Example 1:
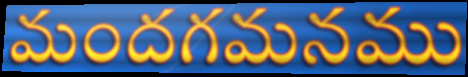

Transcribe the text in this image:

మందగమనము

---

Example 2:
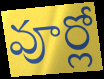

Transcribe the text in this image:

వూర్లో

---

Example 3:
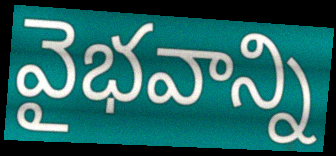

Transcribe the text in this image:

వైభవాన్ని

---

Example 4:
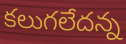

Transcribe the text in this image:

కలుగలేదన్న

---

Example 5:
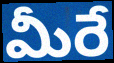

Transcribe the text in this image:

మీరే